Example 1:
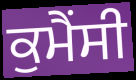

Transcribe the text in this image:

ਕੁਮੈਂਸੀ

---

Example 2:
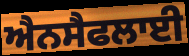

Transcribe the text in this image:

ਐਨਸੈਫਲਾਈ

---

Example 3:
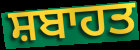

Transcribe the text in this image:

ਸ਼ਬਾਹਤ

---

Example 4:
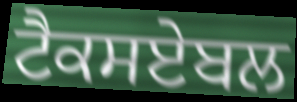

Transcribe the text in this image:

ਟੈਕਸਏਬਲ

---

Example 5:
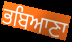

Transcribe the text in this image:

ਭਬਿਆਣਾ